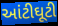
આંટીઘૂટી